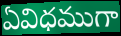
ఏవిధముగా